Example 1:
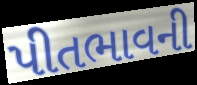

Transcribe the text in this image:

પીતભાવની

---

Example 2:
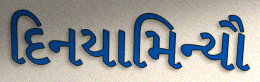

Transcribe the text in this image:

દિનયામિન્યૌ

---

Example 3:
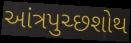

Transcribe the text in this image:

આંત્રપુચ્છશોથ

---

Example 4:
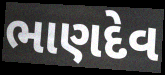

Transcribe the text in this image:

ભાણદેવ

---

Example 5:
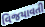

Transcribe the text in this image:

વિજયાવતી